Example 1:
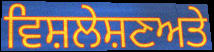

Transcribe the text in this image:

ਵਿਸ਼ਲੇਸ਼ਣਅਤੇ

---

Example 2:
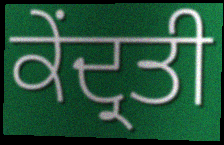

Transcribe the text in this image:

ਕੇਂਦ੍ਰਤੀ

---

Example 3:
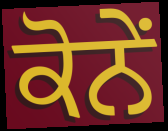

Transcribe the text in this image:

ਕੋਨੇਂ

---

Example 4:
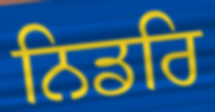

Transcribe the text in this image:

ਨਿਡਰਿ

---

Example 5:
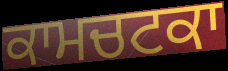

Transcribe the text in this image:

ਕਾਮਚਟਕਾ